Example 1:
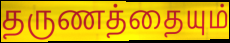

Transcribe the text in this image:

தருணத்தையும்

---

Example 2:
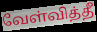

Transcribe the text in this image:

வேள்வித்தீ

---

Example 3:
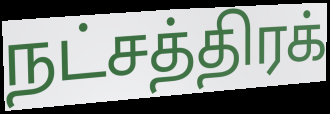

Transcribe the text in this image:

நட்சத்திரக்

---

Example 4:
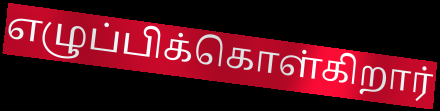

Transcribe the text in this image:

எழுப்பிக்கொள்கிறார்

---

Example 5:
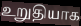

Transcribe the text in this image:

உறுதியாக